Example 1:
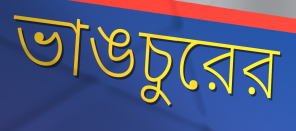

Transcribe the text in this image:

ভাঙচুরের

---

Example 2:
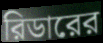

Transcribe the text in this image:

রিডারের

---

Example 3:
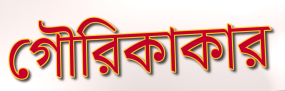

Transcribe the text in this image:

গৌরিকাকার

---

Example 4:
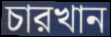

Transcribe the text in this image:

চারখান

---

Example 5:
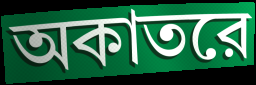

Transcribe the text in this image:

অকাতরে